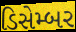
ડિસેમ્બર